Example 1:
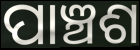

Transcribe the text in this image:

ପାଞ୍ଚଶ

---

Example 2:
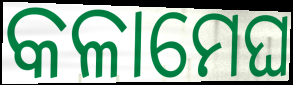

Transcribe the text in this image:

କଳାମେଘ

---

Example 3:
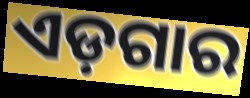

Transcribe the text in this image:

ଏଡ଼ଗାର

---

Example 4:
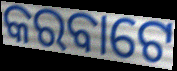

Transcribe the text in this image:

କରବାଟେ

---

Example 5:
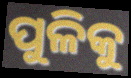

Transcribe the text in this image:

ପୁଳିକୁ